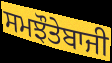
ਸਮਝੌਤੇਬਾਜੀ